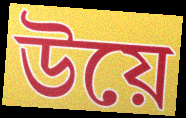
উয়ে